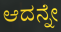
ಆದನ್ನೇ